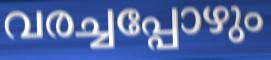
വരച്ചപ്പോഴും